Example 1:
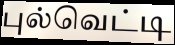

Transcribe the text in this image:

புல்வெட்டி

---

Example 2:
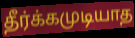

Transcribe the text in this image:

தீர்க்கமுடியாத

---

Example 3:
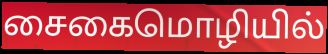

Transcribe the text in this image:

சைகைமொழியில்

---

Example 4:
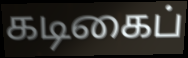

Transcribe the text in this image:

கடிகைப்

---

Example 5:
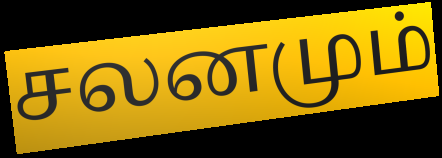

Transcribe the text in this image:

சலனமும்